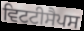
ਵਿਟਟੀਸੈਪਸ